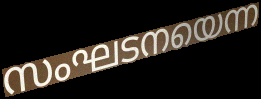
സംഘടനയെന്ന